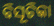
ବିସୂଚିକା